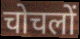
चोचलों